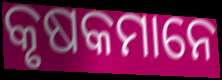
କୃଷକମାନେ